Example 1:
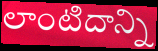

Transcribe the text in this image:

లాంటిదాన్ని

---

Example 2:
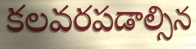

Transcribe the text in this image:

కలవరపడాల్సిన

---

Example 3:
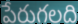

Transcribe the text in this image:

పేరుగలది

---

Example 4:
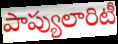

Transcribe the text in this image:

పాప్యులారిటీ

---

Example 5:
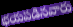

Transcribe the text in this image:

భయపడినవారు